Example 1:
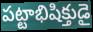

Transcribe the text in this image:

పట్టాభిషిక్తుడై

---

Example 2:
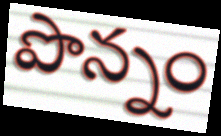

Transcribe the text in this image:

పొన్నం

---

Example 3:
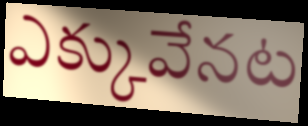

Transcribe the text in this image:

ఎక్కువేనట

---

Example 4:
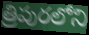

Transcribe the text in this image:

త్రిపురలోని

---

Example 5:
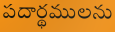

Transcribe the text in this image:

పదార్థములను